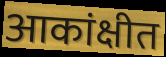
आकांक्षीत